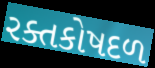
રક્તકોષદળ